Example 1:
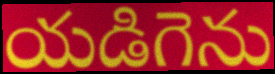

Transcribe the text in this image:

యడిగెను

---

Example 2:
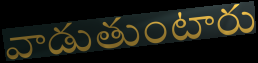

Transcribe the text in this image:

వాడుతుంటారు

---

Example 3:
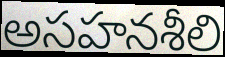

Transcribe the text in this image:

అసహనశీలి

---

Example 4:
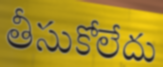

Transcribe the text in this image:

తీసుకోలేదు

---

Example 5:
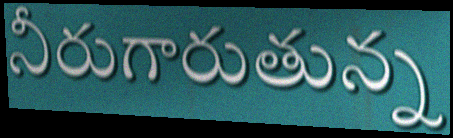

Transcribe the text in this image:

నీరుగారుతున్న